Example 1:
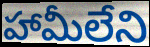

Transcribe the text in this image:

హామీలేని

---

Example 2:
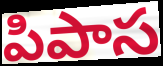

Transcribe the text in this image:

పిపాస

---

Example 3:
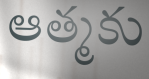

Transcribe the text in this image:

ఆత్మకు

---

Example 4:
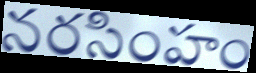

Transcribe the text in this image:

నరసింహం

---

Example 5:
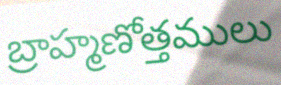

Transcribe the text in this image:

బ్రాహ్మణోత్తములు